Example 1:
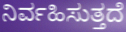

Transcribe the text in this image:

ನಿರ್ವಹಿಸುತ್ತದೆ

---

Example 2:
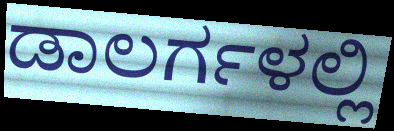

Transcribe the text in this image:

ಡಾಲರ್ಗಳಲ್ಲಿ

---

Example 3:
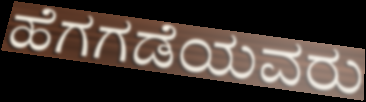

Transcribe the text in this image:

ಹೆಗಗಡೆಯವರು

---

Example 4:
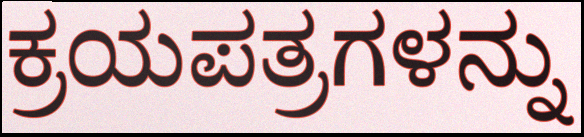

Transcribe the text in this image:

ಕ್ರಯಪತ್ರಗಳನ್ನು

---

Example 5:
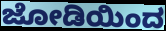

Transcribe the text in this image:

ಜೋಡಿಯಿಂದ